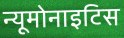
न्यूमोनाइटिस